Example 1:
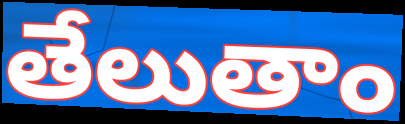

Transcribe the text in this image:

తేలుతాం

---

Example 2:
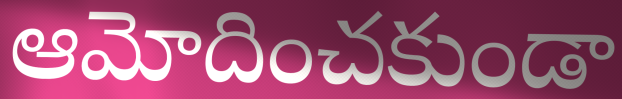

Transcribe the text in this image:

ఆమోదించకుండా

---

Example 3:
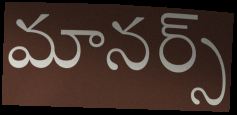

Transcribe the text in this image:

మానర్స్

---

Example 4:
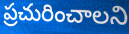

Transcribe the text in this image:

ప్రచురించాలని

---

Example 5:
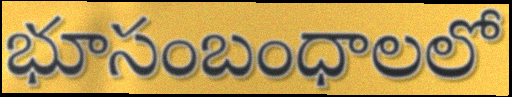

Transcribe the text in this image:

భూసంబంధాలలో